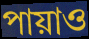
পায়াও